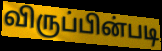
விருப்பின்படி